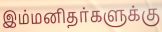
இம்மனிதர்களுக்கு